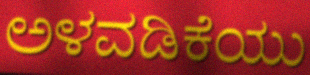
ಅಳವಡಿಕೆಯು